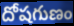
దోషగుణం